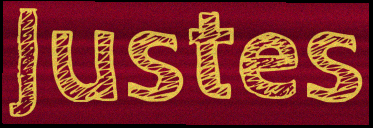
Justes